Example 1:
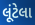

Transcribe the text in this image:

લૂંટેલા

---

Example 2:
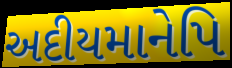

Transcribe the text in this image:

અદીયમાનેપિ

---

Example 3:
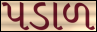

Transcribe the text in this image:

પડાળ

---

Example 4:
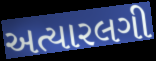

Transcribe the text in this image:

અત્યારલગી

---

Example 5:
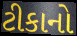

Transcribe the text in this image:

ટીકાનો